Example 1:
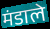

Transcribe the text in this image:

मंडाले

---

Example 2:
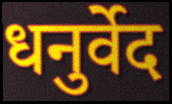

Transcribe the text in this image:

धनुर्वेद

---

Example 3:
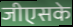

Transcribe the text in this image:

जीएसके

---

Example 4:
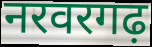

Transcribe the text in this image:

नरवरगढ़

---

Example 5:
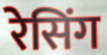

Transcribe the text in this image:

रेसिंग